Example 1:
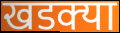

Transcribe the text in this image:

खडक्या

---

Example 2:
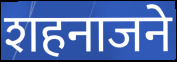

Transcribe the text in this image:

शहनाजने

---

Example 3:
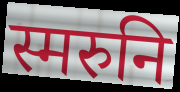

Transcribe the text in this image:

स्मरुनि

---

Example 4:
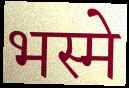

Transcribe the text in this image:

भस्मे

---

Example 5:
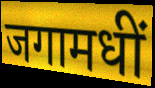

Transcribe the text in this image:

जगामधीं